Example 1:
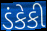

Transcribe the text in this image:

ડંકેકી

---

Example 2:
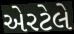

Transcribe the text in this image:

એરટેલે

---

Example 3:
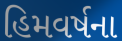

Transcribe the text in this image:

હિમવર્ષના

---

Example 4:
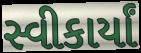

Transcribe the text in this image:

સ્વીકાર્યાં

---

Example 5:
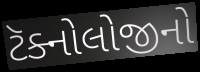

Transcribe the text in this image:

ટૅક્નોલોજીનો